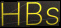
HBs